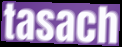
tasach